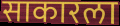
साकारला